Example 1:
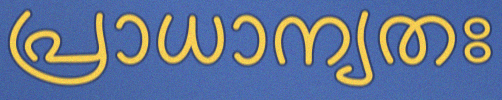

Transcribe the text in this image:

പ്രാധാന്യതഃ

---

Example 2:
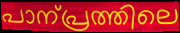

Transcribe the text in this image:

പാന്പ്രത്തിലെ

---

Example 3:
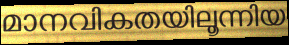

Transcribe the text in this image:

മാനവികതയിലൂന്നിയ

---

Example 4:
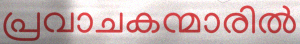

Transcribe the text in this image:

പ്രവാചകന്മാരിൽ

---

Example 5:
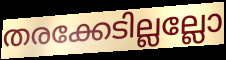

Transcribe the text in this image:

തരക്കേടില്ലല്ലോ